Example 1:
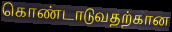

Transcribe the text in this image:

கொண்டாடுவதற்கான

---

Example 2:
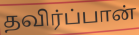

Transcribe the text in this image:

தவிர்ப்பான்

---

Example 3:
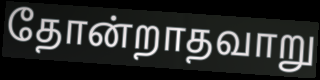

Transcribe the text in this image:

தோன்றாதவாறு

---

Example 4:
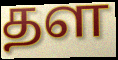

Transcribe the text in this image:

தள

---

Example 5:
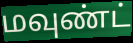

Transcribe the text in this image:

மவுண்ட்